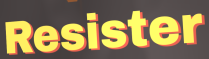
Resister